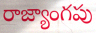
రాజ్యాంగపు